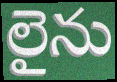
లైను